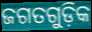
ଜଗତଗୁଡ଼ିକ